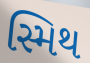
સ્મિથ